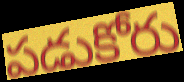
పడుకోరు